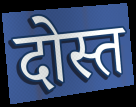
दोस्त